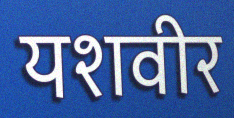
यशवीर